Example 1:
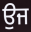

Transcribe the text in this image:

ਉਜ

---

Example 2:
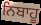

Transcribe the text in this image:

ਨਿਬਾਹੂ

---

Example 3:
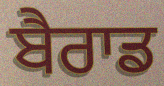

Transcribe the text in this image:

ਬੈਰਾਡ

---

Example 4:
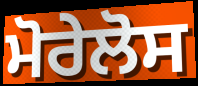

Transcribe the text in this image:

ਮੋਰੇਲੋਸ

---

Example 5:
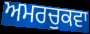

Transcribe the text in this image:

ਅਮਰਚੁਕਵਾ